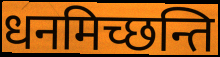
धनमिच्छन्ति